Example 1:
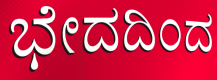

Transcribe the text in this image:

ಭೇದದಿಂದ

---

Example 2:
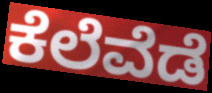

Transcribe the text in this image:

ಕೆಲೆವೆಡೆ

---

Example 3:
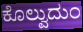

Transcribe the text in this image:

ಕೊಲ್ವುದುಂ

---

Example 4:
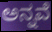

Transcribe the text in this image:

ಅನ್ನವೆ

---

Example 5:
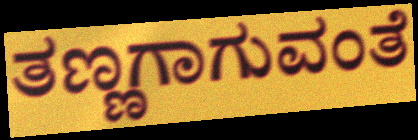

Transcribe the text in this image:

ತಣ್ಣಗಾಗುವಂತೆ